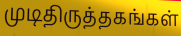
முடிதிருத்தகங்கள்